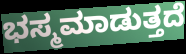
ಭಸ್ಮಮಾಡುತ್ತದೆ